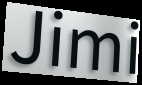
Jimi